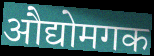
औद्योमगक